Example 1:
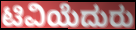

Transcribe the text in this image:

ಟಿವಿಯೆದುರು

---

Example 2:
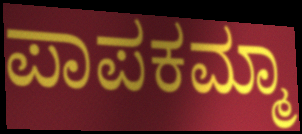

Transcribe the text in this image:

ಪಾಪಕಮ್ಮಾ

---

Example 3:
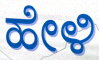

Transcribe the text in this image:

ಹೇಳಿ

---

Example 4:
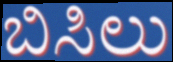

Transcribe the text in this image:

ಬಿಸಿಲು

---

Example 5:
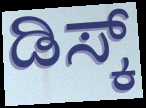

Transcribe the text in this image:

ಡಿಸ್ಕ್